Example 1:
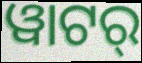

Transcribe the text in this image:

ୱାଟର୍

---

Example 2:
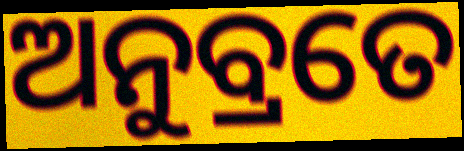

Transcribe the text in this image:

ଅନୁବ୍ରତେ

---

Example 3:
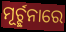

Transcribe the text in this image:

ମୂର୍ଚ୍ଛନାରେ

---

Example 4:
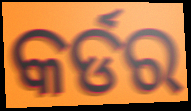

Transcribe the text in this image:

କର୍ଡର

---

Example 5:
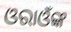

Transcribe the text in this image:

ଓରାଓଁଙ୍କ